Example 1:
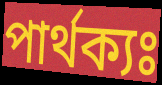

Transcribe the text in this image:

পার্থক্যঃ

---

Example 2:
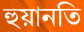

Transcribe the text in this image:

হুয়ানতি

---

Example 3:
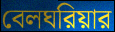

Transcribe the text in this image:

বেলঘরিয়ার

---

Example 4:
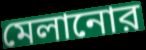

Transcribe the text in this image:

মেলানোর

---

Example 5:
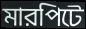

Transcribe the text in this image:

মারপিটে